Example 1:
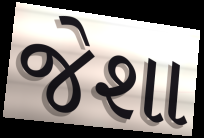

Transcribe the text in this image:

જેશા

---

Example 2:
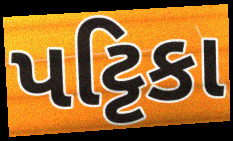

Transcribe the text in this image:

પટ્ટિકા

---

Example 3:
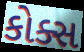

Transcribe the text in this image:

કોક્સ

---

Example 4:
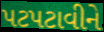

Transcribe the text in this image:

પટપટાવીને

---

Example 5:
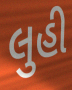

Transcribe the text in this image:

લુહી